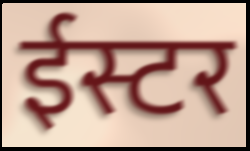
ईस्टर